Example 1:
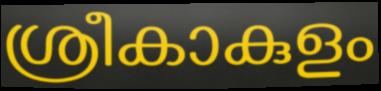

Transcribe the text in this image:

ശ്രീകാകുളം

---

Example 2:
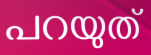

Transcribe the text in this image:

പറയുത്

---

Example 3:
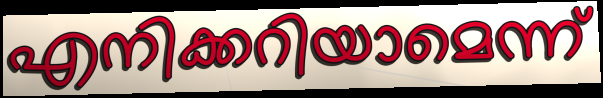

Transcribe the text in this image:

എനിക്കറിയാമെന്ന്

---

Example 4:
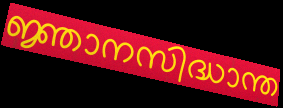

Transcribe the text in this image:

ജ്ഞാനസിദ്ധാന്ത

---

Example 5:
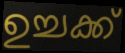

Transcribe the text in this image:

ഉച്ചക്ക്